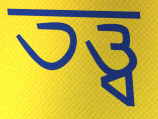
তত্ত্ব